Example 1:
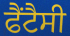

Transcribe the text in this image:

ਫੈਂਟੈਸੀ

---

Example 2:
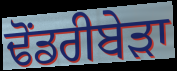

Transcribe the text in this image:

ਢੋਂਡਰੀਬੇੜਾ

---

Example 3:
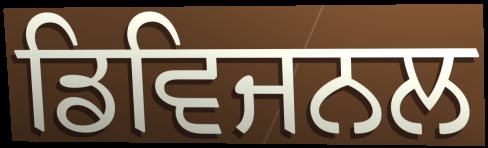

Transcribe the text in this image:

ਡਿਵਿਜਨਲ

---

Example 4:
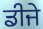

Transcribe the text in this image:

ਡੀਜੇ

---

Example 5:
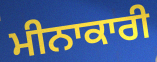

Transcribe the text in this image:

ਮੀਨਾਕਾਰੀ